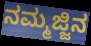
ನಮ್ಮಜ್ಜಿನ